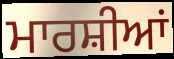
ਮਾਰਸ਼ੀਆਂ